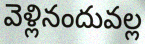
వెళ్లినందువల్ల